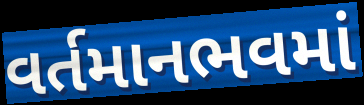
વર્તમાનભવમાં